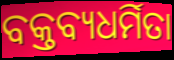
ବକ୍ତବ୍ୟଧର୍ମିତା